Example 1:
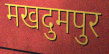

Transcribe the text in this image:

मखदुमपुर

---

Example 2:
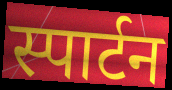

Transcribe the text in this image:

स्पार्टन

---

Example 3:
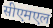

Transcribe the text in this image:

सीएमएल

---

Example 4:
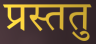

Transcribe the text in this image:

प्रस्ततु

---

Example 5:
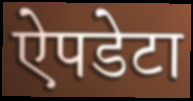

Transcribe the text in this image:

ऐपडेटा